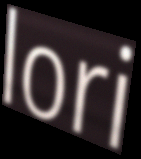
lori